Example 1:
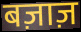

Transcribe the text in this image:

बज़ाज़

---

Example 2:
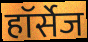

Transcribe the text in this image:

हॉर्सेज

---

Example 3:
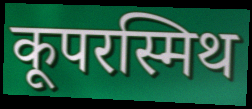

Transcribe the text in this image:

कूपरस्मिथ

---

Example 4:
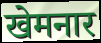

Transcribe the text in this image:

खेमनार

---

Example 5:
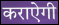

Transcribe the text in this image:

कराऐगी